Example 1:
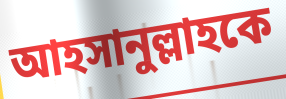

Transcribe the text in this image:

আহসানুল্লাহকে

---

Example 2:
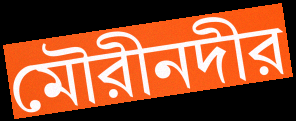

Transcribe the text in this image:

মৌরীনদীর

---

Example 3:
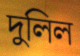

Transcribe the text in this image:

দুলিল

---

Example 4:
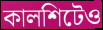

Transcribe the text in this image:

কালশিটেও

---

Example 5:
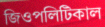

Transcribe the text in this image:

জিওপলিটিকাল